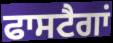
ਫਾਸਟੈਗਾਂ